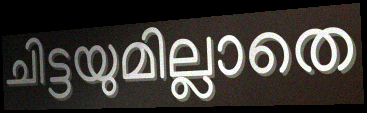
ചിട്ടയുമില്ലാതെ